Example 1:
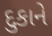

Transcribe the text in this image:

દુકાને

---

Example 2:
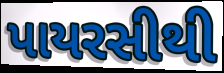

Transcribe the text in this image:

પાયરસીથી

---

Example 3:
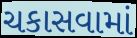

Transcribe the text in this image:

ચકાસવામાં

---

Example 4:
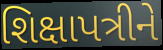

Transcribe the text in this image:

શિક્ષાપત્રીને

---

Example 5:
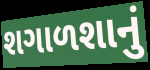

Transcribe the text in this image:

શગાળશાનું